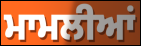
ਮਾਮਲੀਆਂ